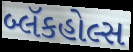
બ્લૅકહોલ્સ